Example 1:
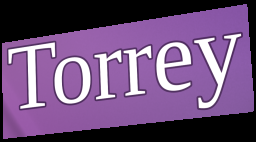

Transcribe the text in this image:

Torrey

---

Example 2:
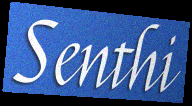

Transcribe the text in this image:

Senthi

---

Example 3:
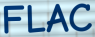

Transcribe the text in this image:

FLAC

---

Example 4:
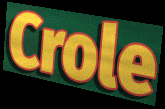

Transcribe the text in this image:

Crole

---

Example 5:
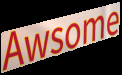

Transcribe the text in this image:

Awsome